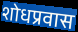
शोधप्रवास